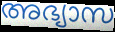
അഭ്യാസ